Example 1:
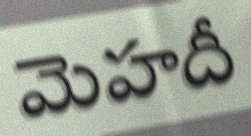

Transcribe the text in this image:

మెహదీ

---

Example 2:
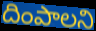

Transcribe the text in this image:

దింపాలని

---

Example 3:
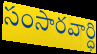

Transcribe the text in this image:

సంసారవార్ధి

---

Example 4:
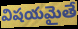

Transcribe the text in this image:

విషయమైతే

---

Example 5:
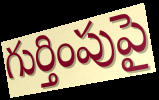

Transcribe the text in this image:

గుర్తింపుపై